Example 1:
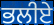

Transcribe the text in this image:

ਭਲੀਏ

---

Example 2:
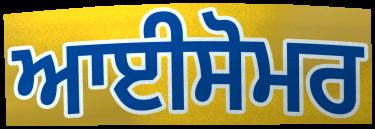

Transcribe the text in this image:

ਆਈਸੋਮਰ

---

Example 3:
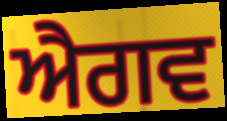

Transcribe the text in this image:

ਐਗਵ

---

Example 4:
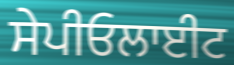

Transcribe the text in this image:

ਸੇਪੀਓਲਾਈਟ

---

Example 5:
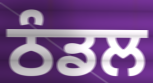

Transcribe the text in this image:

ਠੰਡਲ